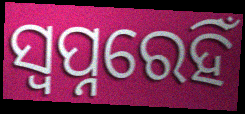
ସ୍ୱପ୍ନରେହିଁ